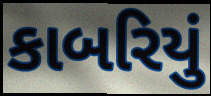
કાબરિયું